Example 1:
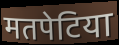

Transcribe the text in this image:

मतपेटिया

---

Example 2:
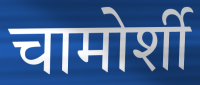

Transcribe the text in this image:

चामोर्शी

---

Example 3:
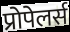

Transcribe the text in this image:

प्रोपेलर्स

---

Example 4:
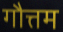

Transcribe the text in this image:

गौत्तम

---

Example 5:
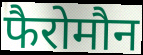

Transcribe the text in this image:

फैरोमौन